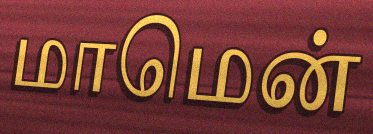
மாமென்